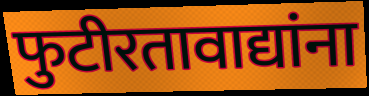
फुटीरतावाद्यांना